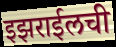
इझराईलची